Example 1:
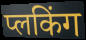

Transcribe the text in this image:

प्लकिंग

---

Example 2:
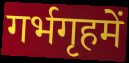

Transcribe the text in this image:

गर्भगृहमें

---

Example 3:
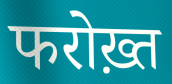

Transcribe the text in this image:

फरोख़्त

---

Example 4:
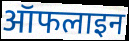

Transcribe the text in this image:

ऑफलाइन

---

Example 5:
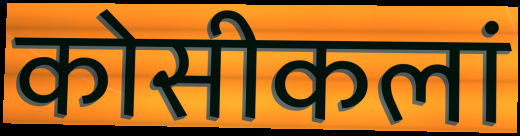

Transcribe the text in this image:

कोसीकलां